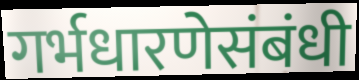
गर्भधारणेसंबंधी